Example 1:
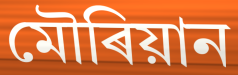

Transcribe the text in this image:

মৌৰিয়ান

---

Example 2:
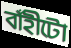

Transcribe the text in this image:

বাঁহীটো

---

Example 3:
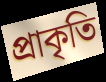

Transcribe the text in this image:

প্ৰাকৃতি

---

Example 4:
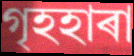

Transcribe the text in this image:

গৃহহাৰা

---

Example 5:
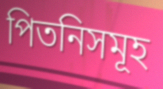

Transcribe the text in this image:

পিতনিসমূহ